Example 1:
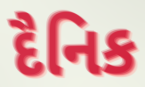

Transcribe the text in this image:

દૈનિક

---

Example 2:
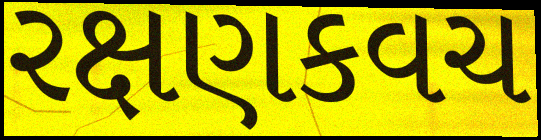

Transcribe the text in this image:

રક્ષણકવચ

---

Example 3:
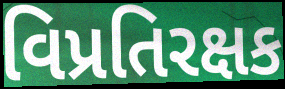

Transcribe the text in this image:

વિપ્રતિરક્ષક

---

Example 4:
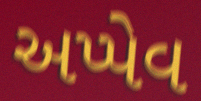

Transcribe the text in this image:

અપ્પેવ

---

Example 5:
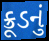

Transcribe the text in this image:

ક્રૂડનું